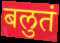
बलुतं